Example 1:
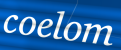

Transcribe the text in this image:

coelom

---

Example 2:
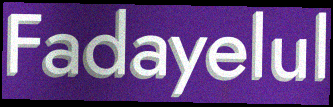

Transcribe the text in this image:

Fadayelul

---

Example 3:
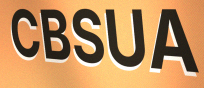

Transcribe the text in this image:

CBSUA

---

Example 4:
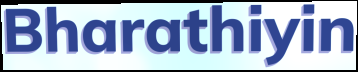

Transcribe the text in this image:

Bharathiyin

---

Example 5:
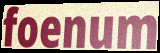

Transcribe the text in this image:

foenum